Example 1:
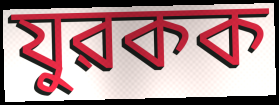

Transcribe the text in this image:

যুৱকক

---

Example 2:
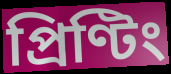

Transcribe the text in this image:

প্ৰিণ্টিং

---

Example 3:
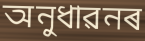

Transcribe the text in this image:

অনুধাৱনৰ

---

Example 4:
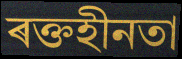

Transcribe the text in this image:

ৰক্তহীনতা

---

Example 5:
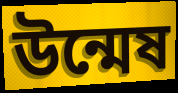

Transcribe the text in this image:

উন্মেষ